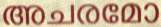
അചരമോ